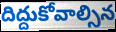
దిద్దుకోవాల్సిన